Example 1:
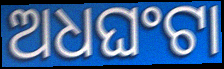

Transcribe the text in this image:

ଅଧଘଂଟା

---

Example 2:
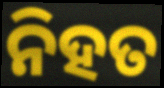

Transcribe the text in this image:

ନିହତ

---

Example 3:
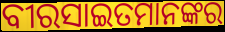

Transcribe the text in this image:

ବୀରସାଇତମାନଙ୍କର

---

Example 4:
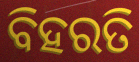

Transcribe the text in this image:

ବିହରତି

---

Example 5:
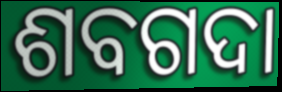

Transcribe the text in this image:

ଶବଗଦା